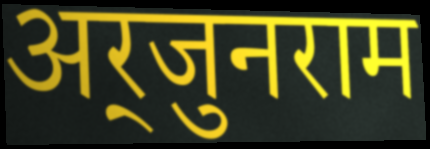
अर्जुनराम